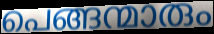
പെങ്ങന്മാരും